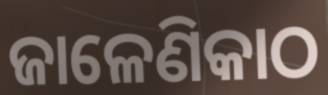
ଜାଳେଣିକାଠ